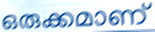
ഒരുക്കമാണ്